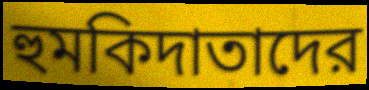
হুমকিদাতাদের